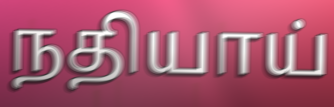
நதியாய்